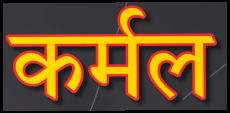
कर्मल